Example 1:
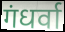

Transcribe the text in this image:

गंधर्वा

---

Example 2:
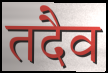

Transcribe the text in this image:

तदैव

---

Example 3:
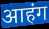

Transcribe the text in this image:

आहंग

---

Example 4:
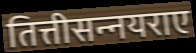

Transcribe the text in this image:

तित्तीसन्नयराए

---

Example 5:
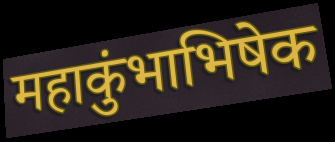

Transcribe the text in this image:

महाकुंभाभिषेक